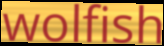
wolfish